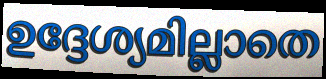
ഉദ്ദേശ്യമില്ലാതെ